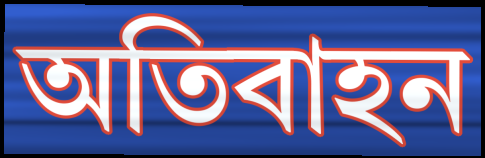
অতিবাহন